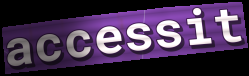
accessit